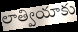
లాత్వియాకు